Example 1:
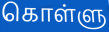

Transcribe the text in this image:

கொள்ளு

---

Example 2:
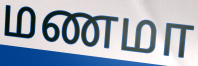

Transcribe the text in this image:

மணமா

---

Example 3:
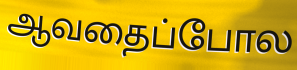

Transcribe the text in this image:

ஆவதைப்போல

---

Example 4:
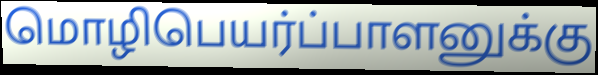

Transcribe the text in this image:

மொழிபெயர்ப்பாளனுக்கு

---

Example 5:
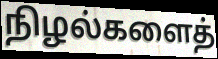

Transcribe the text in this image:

நிழல்களைத்